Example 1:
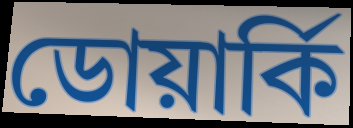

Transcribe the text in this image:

ডোয়ার্কি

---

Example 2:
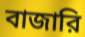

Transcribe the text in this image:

বাজারি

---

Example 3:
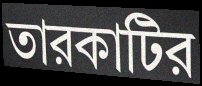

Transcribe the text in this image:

তারকাটির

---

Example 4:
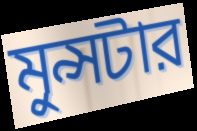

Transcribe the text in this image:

মুন্সটার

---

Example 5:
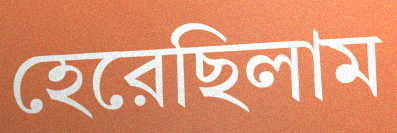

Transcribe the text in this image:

হেরেছিলাম